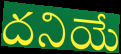
దనియే